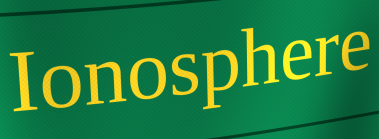
Ionosphere